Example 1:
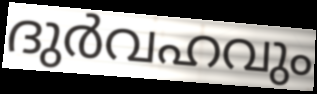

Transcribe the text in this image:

ദുർവഹവും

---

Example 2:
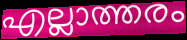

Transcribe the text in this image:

എല്ലാത്തരം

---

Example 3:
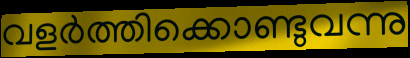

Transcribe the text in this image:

വളർത്തിക്കൊണ്ടുവന്നു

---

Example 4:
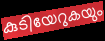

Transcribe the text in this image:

കുടിയേറുകയും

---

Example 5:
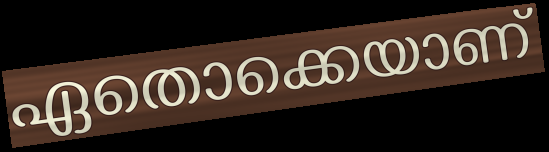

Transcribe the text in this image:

ഏതൊക്കെയാണ്